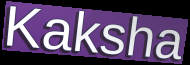
Kaksha